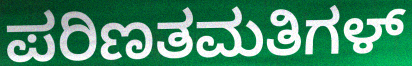
ಪರಿಣತಮತಿಗಳ್